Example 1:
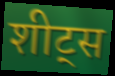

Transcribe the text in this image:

शीट्स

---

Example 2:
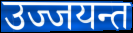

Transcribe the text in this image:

उज्जयन्त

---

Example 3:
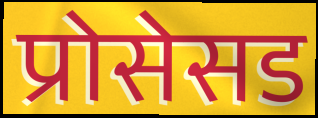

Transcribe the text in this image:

प्रोसेसड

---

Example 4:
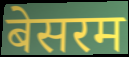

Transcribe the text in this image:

बेसरम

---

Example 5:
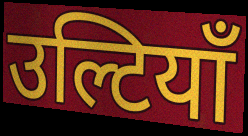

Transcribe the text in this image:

उल्टियाँ